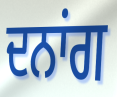
ਦਨਾਂਗ